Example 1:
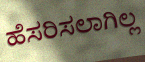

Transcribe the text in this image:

ಹೆಸರಿಸಲಾಗಿಲ್ಲ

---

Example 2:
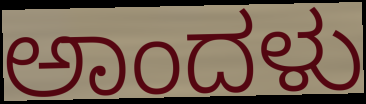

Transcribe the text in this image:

ಅಾಂದಳು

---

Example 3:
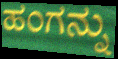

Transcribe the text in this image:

ಹಂಗನ್ನು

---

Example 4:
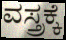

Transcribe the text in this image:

ವಸ್ತ್ರಕ್ಕೆ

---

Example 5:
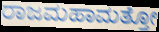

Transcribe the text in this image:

ರಾಜಮಹಾಮತ್ತೋ